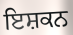
ਇਸ਼ਕਨ